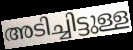
അടിച്ചിട്ടുള്ള